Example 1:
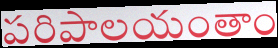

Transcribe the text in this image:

పరిపాలయంతాం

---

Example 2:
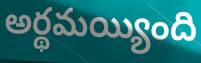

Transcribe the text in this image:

అర్థమయ్యింది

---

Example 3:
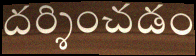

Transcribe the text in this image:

దర్శించడం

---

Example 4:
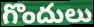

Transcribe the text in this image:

గొందులు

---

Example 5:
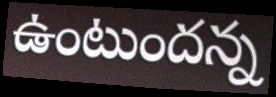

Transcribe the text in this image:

ఉంటుందన్న